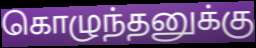
கொழுந்தனுக்கு